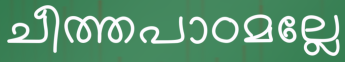
ചീത്തപാഠമല്ലേ